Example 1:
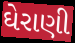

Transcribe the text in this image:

ઘેરાણી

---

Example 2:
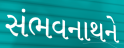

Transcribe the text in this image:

સંભવનાથને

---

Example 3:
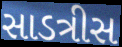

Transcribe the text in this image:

સાડત્રીસ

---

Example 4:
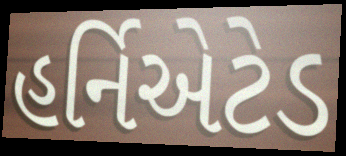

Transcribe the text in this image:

હર્નિએટેડ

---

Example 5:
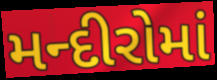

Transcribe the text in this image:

મન્દીરોમાં